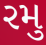
રમુ